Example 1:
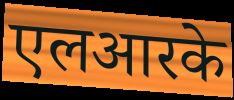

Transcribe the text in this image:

एलआरके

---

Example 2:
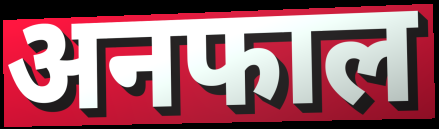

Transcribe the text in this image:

अनफाल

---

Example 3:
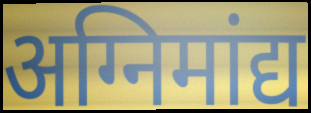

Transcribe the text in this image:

अग्निमांद्य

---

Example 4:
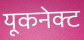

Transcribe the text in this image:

यूकनेक्ट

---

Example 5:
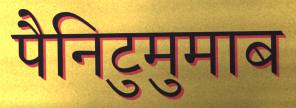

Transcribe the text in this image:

पैनिटुमुमाब